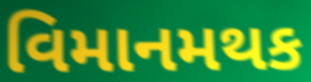
વિમાનમથક